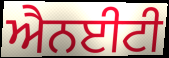
ਐਨਈਟੀ